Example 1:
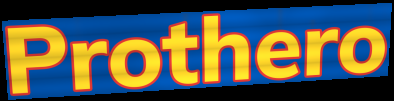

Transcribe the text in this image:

Prothero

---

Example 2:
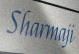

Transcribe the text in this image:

Sharmaji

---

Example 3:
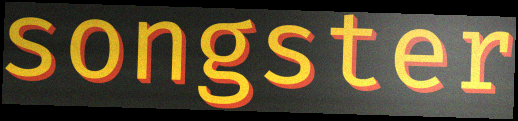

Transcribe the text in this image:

songster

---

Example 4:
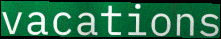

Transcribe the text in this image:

vacations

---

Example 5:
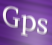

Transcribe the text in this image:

Gps